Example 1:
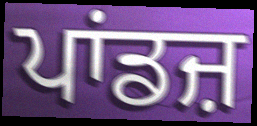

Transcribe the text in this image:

ਪਾਂਡਜ਼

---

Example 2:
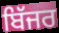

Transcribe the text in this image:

ਬਿੱਜਰ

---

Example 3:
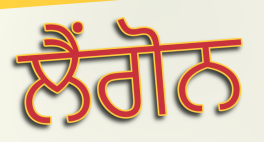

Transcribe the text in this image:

ਲੈਂਗੋਨ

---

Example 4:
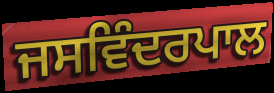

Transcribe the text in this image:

ਜਸਵਿੰਦਰਪਾਲ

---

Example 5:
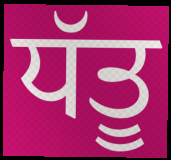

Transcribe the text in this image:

ਧੱਤੂ